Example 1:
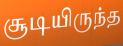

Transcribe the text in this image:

சூடியிருந்த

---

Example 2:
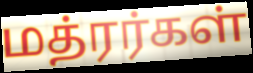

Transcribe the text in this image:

மத்ரர்கள்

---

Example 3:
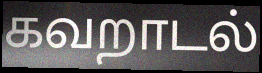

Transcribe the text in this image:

கவறாடல்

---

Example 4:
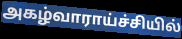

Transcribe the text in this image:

அகழ்வாராய்ச்சியில்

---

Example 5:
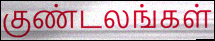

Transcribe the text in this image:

குண்டலங்கள்